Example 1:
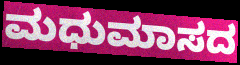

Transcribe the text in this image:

ಮಧುಮಾಸದ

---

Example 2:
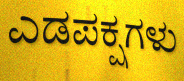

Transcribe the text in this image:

ಎಡಪಕ್ಷಗಳು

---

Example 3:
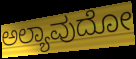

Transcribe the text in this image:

ಅಲ್ಯಾವುದೋ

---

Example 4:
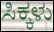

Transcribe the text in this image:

ಸಿಕ್ಕಳು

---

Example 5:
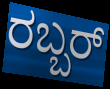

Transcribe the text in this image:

ರಬ್ಬರ್